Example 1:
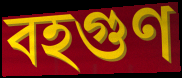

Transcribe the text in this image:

বহগুণ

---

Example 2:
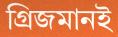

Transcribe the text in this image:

গ্রিজমানই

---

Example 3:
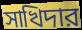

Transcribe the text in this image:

সাখিদার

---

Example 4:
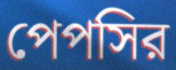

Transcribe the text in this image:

পেপসির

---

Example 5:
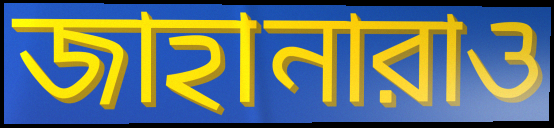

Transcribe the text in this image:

জাহানারাও